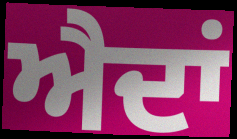
ਐਦਾਂ